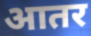
आतर